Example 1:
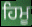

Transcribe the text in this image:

ਹਿਮੂ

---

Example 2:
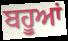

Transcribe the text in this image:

ਬਹੂਆਂ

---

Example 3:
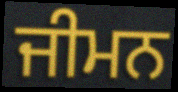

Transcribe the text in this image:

ਜੀਮਨ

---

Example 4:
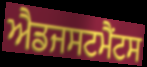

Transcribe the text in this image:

ਐਡਜਸਟਮੈਂਟਸ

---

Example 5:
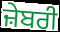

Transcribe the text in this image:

ਜ਼ੇਬਰੀ